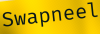
Swapneel